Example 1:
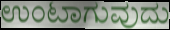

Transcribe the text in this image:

ಉಂಟಾಗುವುದು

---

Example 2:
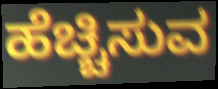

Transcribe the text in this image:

ಹೆಚ್ಚಿಸುವ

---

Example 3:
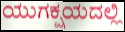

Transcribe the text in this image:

ಯುಗಕ್ಷಯದಲ್ಲಿ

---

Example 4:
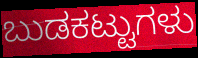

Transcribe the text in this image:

ಬುಡಕಟ್ಟುಗಳು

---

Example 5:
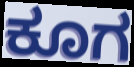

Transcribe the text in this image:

ಕೂಗ